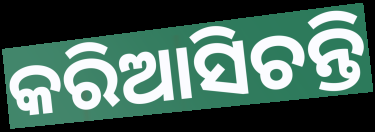
କରିଆସିଚନ୍ତି